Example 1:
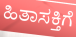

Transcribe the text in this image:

ಹಿತಾಸಕ್ತಿಗೆ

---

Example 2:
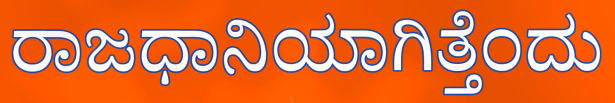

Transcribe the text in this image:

ರಾಜಧಾನಿಯಾಗಿತ್ತೆಂದು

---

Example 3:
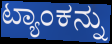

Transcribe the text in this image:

ಟ್ಯಾಂಕನ್ನು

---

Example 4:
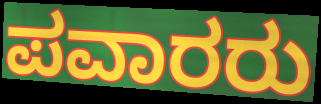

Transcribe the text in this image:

ಪವಾರರು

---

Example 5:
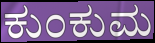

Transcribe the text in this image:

ಕುಂಕುಮ